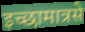
इच्छामात्रसे